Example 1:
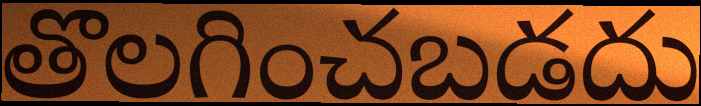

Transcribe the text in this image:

తొలగించబడదు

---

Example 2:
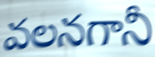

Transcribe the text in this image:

వలనగానీ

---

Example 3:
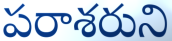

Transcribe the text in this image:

పరాశరుని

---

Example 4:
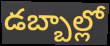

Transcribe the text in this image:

డబ్బాల్లో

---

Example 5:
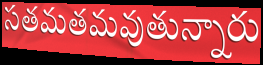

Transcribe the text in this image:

సతమతమవుతున్నారు